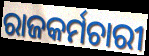
ରାଜକର୍ମଚାରୀ